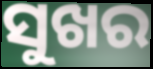
ସୁଖର